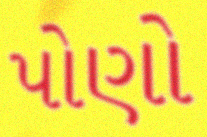
પોણો